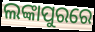
ଲଙ୍କାପୁରରେ